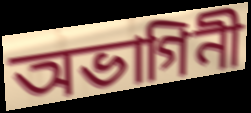
অভাগিনী